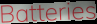
Batteries